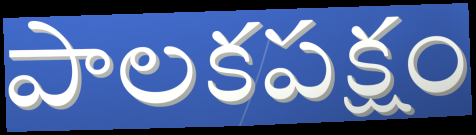
పాలకపక్షం